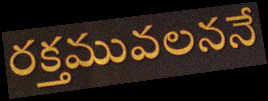
రక్తమువలననే